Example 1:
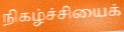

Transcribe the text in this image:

நிகழ்ச்சியைக்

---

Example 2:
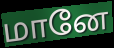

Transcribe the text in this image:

மானே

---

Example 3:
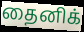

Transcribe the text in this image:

தைனிக்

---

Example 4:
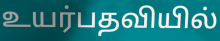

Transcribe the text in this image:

உயர்பதவியில்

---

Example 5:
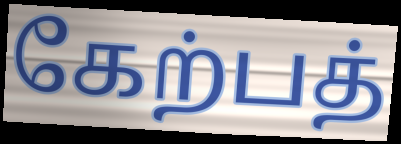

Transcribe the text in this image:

கேற்பத்